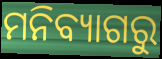
ମନିବ୍ୟାଗରୁ